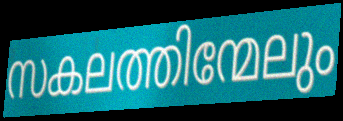
സകലത്തിന്മേലും